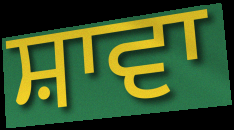
ਸ਼ਾਵਾ